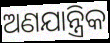
ଅଣଯାନ୍ତ୍ରିକ